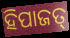
ହିପାଜତ୍